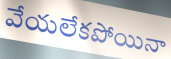
వేయలేకపోయినా